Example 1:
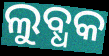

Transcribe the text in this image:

ଲୁବ୍ଧକ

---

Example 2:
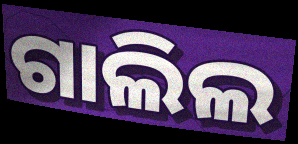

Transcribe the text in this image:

ଗାଲିଲ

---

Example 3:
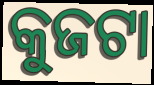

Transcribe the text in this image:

କୁଜଟା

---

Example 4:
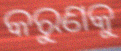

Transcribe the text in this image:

କରୁଣକୁ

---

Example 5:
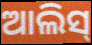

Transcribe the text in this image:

ଆଲିସ୍